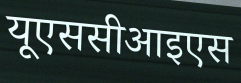
यूएससीआइएस